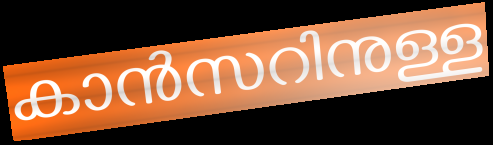
കാൻസറിനുള്ള